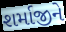
શર્માજીને